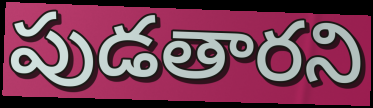
పుడతారని